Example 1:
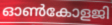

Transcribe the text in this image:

ഓൺകോളജി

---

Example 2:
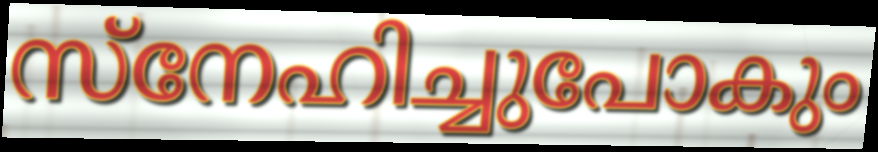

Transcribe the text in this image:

സ്നേഹിച്ചുപോകും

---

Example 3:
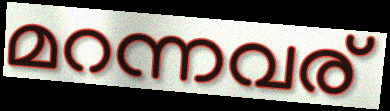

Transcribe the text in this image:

മറന്നവര്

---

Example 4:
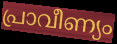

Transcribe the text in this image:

പ്രാവീണ്യം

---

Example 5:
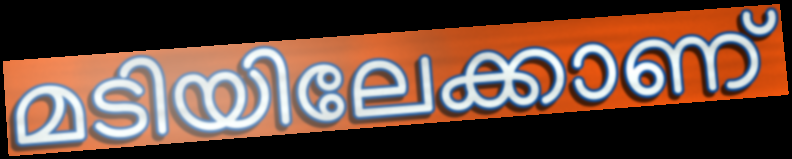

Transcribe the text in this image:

മടിയിലേക്കാണ്